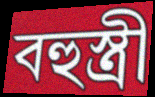
বহুস্ত্ৰী